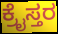
ಕ್ರೈಸ್ತರ